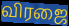
விரஜை